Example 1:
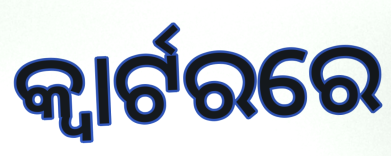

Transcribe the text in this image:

କ୍ୱାର୍ଟରରେ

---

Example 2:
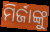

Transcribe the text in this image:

ମିର୍ଜାଙ୍କୁ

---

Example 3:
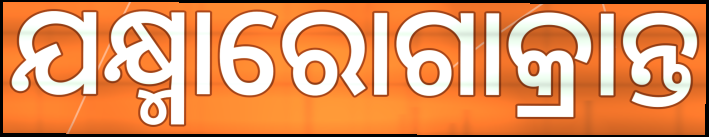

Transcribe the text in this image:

ଯକ୍ଷ୍ମାରୋଗାକ୍ରାନ୍ତ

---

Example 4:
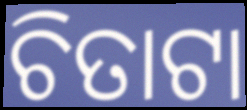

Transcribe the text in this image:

ଚିତାଟା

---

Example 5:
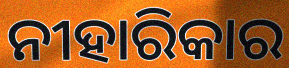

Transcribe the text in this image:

ନୀହାରିକାର